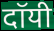
दॉयी